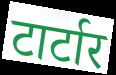
टार्टार